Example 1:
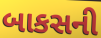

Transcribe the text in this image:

બાકસની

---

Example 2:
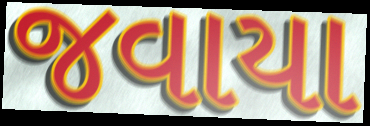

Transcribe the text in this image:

જવાયા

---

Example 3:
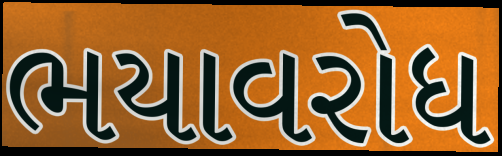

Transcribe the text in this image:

ભયાવરોધ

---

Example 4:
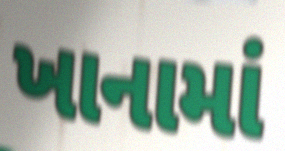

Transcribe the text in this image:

ખાનામાં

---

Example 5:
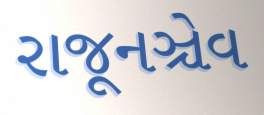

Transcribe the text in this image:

રાજૂનઞ્ચેવ